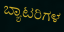
ಬ್ಯಾಟರಿಗಳ